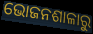
ଭୋଜନଶାଳାରୁ